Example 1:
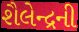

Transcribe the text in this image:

શૈલેન્દ્રની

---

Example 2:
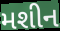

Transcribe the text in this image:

મશીન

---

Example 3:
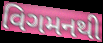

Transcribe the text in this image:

વિગમનથી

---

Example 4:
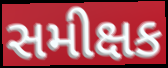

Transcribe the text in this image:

સમીક્ષક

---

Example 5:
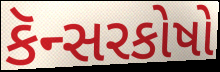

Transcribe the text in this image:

કૅન્સરકોષો